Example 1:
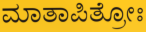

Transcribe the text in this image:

ಮಾತಾಪಿತ್ರೋಃ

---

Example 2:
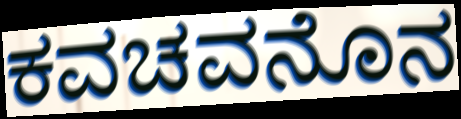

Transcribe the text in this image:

ಕವಚವನೊನ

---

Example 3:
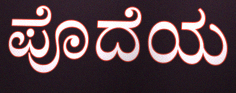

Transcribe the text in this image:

ಪೊದೆಯ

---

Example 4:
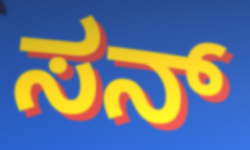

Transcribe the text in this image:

ಸನ್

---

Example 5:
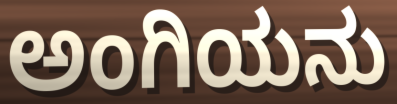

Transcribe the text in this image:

ಅಂಗಿಯನು